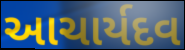
આચાર્યદવ